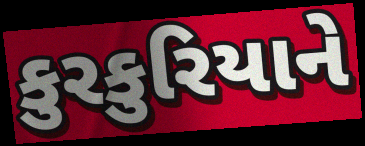
કુરકુરિયાને